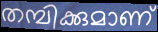
തമ്പിക്കുമാണ്